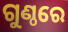
ଗୁଣ୍ଠରେ